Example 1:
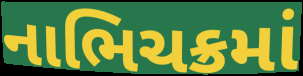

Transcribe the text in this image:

નાભિચક્રમાં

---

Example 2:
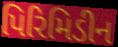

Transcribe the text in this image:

પિરિમિડીન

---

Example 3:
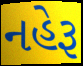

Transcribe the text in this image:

નહેરૂ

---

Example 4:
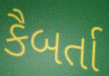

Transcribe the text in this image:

કૈબર્તા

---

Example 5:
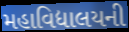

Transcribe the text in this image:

મહાવિદ્યાલયની